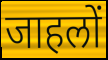
जाहलों